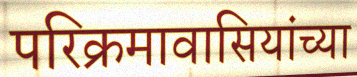
परिक्रमावासियांच्या